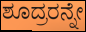
ಶೂದ್ರರನ್ನೇ